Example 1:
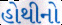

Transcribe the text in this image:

હોથીનો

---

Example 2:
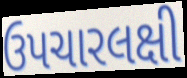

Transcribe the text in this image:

ઉપચારલક્ષી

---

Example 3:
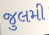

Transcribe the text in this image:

જુલમી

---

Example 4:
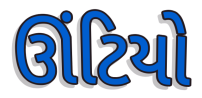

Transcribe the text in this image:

ઊંટિયો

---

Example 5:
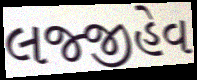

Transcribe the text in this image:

લજ્જીહેવ